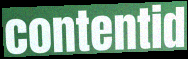
contentid